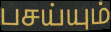
பசய்யும்